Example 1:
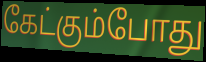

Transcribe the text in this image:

கேட்கும்போது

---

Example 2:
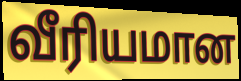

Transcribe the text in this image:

வீரியமான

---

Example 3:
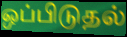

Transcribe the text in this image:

ஒப்பிடுதல்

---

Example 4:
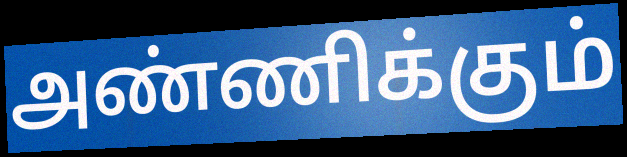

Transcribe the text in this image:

அண்ணிக்கும்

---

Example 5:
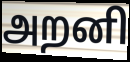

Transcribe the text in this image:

அறனி